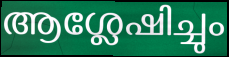
ആശ്ലേഷിച്ചും